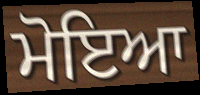
ਮੋਇਆ